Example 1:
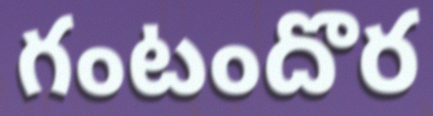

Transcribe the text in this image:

గంటందొర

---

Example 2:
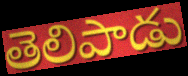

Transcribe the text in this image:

తెలిపాడు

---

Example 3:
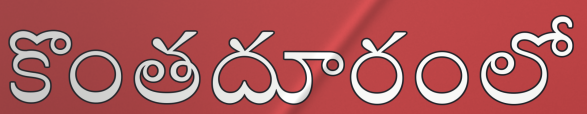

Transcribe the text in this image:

కొంతదూరంలో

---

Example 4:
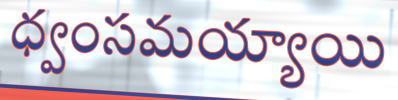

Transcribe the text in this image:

ధ్వంసమయ్యాయి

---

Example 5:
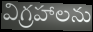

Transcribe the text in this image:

విగ్రహాలను